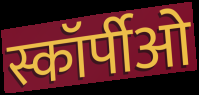
स्कॉर्पीओ